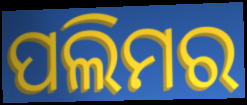
ପଲିମର